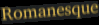
Romanesque